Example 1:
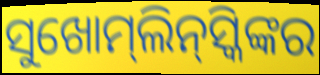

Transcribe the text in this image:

ସୁଖୋମ୍‌ଲିନ୍‌ସ୍କିଙ୍କର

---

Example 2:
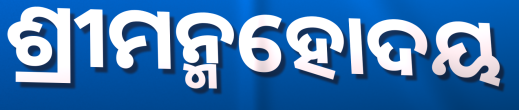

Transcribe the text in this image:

ଶ୍ରୀମନ୍ମହୋଦୟ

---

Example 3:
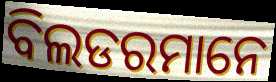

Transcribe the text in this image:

ବିଲଡରମାନେ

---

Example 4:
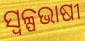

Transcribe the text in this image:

ସ୍ୱଳ୍ପଭାଷୀ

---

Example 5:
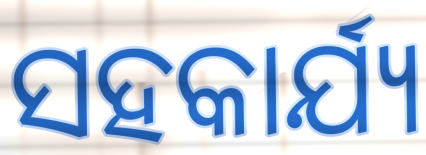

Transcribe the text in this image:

ସହକାର୍ଯ୍ୟ